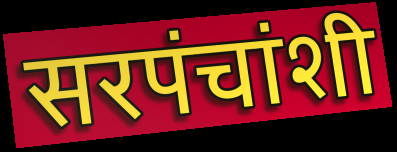
सरपंचांशी